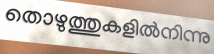
തൊഴുത്തുകളിൽനിന്നു